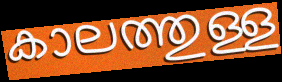
കാലത്തുള്ള